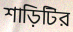
শাড়িটির